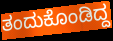
ತಂದುಕೊಂಡಿದ್ದ